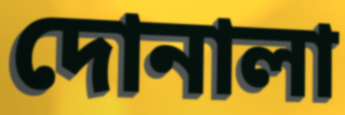
দোনালা